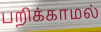
பறிக்காமல்